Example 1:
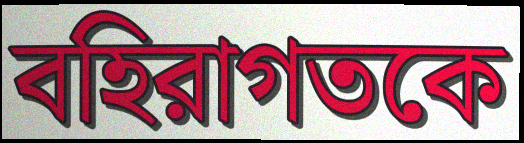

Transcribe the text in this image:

বহিরাগতকে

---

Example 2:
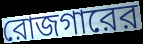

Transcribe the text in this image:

রোজগারের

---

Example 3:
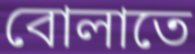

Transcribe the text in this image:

বোলাতে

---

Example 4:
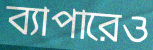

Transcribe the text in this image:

ব্যাপারেও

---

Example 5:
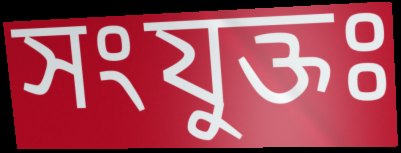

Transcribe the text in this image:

সংযুক্তঃ